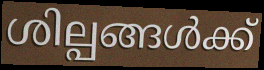
ശില്പങ്ങൾക്ക്